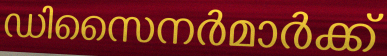
ഡിസൈനർമാർക്ക്